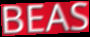
BEAS